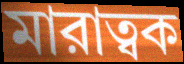
মারাত্বক